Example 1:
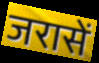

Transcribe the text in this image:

जरासें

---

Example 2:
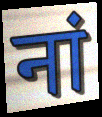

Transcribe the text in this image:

नां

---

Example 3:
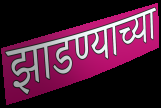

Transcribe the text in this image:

झाडण्याच्या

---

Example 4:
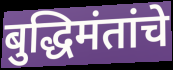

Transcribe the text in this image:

बुद्धिमंतांचे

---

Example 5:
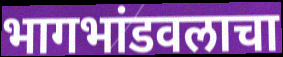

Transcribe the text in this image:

भागभांडवलाचा